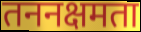
तननक्षमता